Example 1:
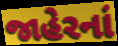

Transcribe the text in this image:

જાહેરનાં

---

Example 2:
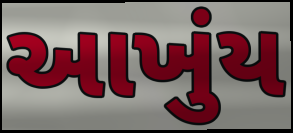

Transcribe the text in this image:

આખુંય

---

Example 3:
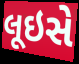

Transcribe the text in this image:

લૂઇસે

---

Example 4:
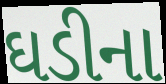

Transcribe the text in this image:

ઘડીના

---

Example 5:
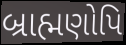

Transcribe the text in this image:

બ્રાહ્મણોપિ